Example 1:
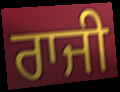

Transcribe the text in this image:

ਰਾਜੀ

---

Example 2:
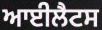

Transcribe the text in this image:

ਆਈਲੈਟਸ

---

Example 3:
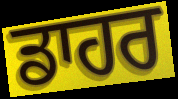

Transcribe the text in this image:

ਡਾਹਰ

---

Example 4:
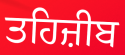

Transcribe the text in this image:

ਤਹਿਜ਼ੀਬ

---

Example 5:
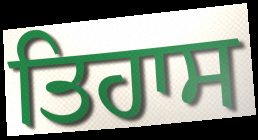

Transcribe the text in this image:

ਤਿਹਾਸ